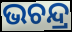
ଭଚନ୍ଦ୍ର